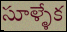
సూళ్ళేక